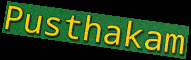
Pusthakam